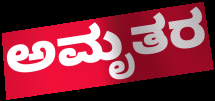
ಅಮೃತರ